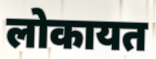
लोकायत